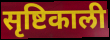
सृष्टिकाली